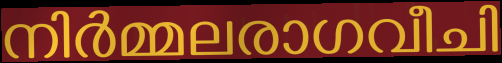
നിർമ്മലരാഗവീചി